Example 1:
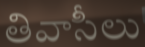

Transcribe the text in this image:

తివాసీలు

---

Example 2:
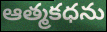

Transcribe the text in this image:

ఆత్మకధను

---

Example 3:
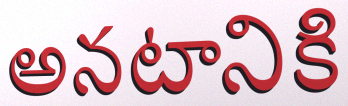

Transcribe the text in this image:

అనటానికి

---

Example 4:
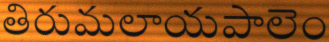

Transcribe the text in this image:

తిరుమలాయపాలెం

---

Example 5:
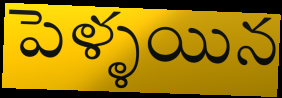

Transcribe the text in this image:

పెళ్ళయిన